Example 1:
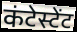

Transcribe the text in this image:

कंटेस्टेंट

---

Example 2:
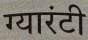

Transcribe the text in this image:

ग्‍यारंटी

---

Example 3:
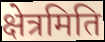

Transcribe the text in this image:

क्षेत्रमिति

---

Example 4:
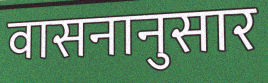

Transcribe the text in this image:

वासनानुसार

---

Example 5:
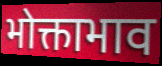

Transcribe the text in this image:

भोक्ताभाव